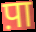
प़ा